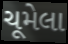
ચૂમેલા